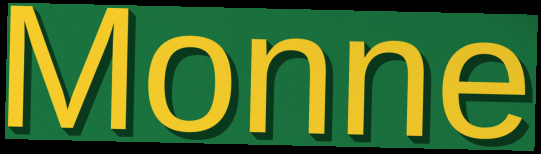
Monne